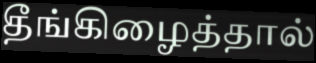
தீங்கிழைத்தால்